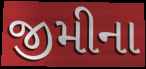
જીમીના